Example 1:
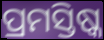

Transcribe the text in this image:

ପ୍ରମସ୍ତିଷ୍କ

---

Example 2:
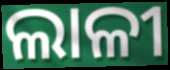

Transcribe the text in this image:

ଲାଳୀ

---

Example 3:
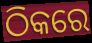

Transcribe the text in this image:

ଠିକରେ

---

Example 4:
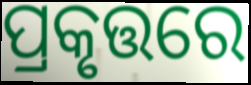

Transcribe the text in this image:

ପ୍ରକୃତ୍ତରେ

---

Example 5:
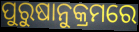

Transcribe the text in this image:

ପୁରୁଷାନୁକ୍ରମରେ